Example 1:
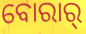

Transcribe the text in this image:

ବୋରାର୍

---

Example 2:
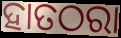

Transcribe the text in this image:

ହାତଠରା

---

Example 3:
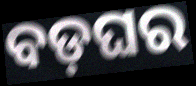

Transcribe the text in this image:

ବଡ଼ଘର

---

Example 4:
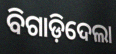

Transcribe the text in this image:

ବିଗାଡ଼ିଦେଲା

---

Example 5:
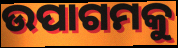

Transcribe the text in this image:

ଉପାଗମକୁ